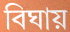
বিঘায়